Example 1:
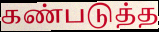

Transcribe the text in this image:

கண்படுத்த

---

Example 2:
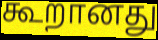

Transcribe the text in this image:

கூறானது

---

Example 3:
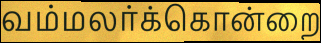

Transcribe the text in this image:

வம்மலர்க்கொன்றை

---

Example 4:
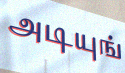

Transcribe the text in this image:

அடியுங்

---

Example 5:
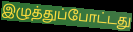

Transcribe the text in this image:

இழுத்துப்போட்டது